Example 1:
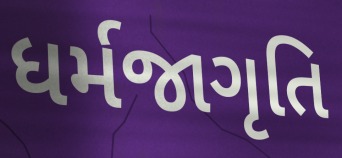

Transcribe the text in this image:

ધર્મજાગૃતિ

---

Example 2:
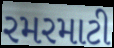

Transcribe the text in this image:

રમરમાટી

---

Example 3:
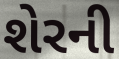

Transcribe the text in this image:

શેરની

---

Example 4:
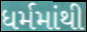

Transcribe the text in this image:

ધર્મમાંથી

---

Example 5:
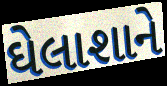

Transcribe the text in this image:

ઘેલાશાને